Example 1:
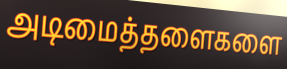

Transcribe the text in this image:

அடிமைத்தளைகளை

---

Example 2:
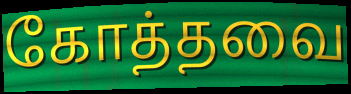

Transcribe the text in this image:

கோத்தவை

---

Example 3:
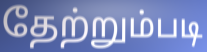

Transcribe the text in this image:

தேற்றும்படி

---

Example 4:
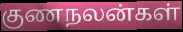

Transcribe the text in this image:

குணநலன்கள்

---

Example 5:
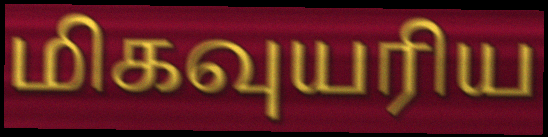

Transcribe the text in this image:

மிகவுயரிய